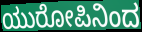
ಯುರೋಪಿನಿಂದ